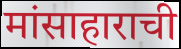
मांसाहाराची